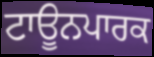
ਟਾਊਨਪਾਰਕ